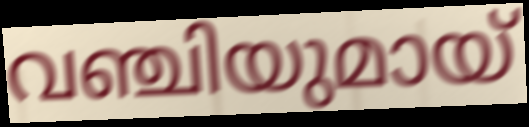
വഞ്ചിയുമായ്